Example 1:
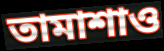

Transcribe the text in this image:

তামাশাও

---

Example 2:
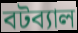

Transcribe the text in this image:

বটব্যাল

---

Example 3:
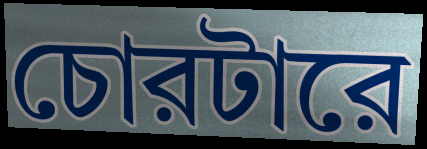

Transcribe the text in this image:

চোরটারে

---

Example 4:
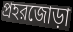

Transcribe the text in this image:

প্রহরজোড়া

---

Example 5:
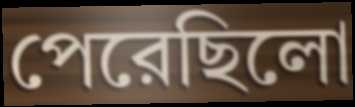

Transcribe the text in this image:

পেরেছিলো